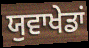
ਯੁਵਾਖੇਡਾਂ